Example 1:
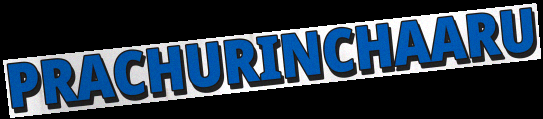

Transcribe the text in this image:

PRACHURINCHAARU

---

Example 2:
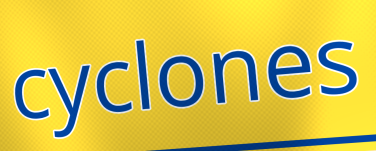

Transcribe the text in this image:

cyclones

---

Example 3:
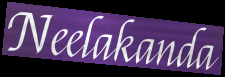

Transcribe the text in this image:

Neelakanda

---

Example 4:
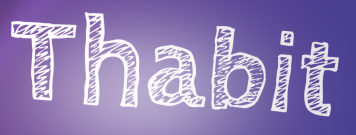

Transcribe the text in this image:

Thabit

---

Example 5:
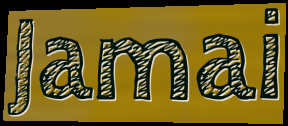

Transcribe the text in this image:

Jamai